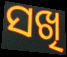
ସଖି